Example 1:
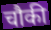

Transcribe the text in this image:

चौकी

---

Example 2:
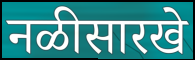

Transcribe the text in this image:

नळीसारखे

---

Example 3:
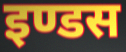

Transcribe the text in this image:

इण्डस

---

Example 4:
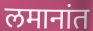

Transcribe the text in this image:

लमानांत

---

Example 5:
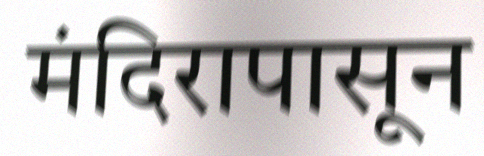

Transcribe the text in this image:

मंदिरापासून